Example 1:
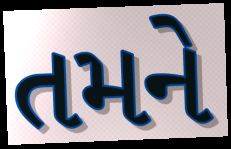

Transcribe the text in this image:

તમને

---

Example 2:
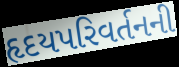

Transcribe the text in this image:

હૃદયપરિવર્તનની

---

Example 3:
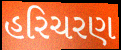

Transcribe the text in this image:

હરિચરણ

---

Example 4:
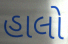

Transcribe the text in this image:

હાલો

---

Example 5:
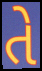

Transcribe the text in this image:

તે